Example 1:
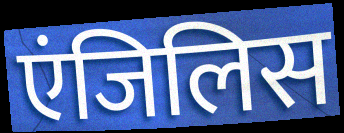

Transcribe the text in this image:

एंजिलिस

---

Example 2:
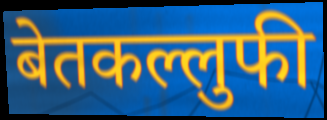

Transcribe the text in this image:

बेतकल्लुफी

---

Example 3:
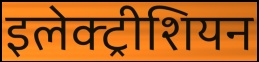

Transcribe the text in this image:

इलेक्ट्रीशियन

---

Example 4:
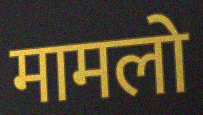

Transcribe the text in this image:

मामलो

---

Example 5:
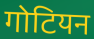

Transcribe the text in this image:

गोटियन